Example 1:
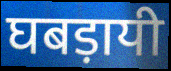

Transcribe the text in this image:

घबड़ायी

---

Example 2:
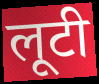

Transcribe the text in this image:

लूटी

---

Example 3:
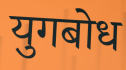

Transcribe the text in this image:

युगबोध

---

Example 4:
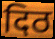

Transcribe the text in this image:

दिठ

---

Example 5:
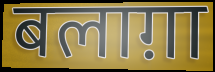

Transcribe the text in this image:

बलाग़ा